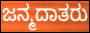
ಜನ್ಮದಾತರು